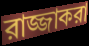
রাজ্জাকরা